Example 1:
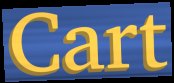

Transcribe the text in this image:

Cart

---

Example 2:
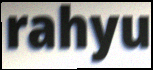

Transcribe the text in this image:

rahyu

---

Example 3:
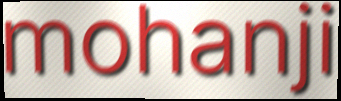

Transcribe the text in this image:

mohanji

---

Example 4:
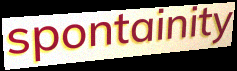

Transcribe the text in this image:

spontainity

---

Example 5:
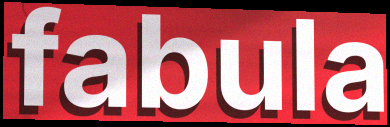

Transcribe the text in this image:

fabula